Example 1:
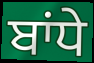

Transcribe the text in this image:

ਬਾਂਧੇ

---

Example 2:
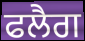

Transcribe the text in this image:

ਫਲੈਗ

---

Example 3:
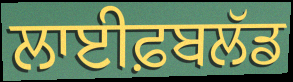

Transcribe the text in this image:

ਲਾਈਫ਼ਬਲੱਡ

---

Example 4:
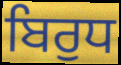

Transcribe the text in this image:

ਬਿਰੁਧ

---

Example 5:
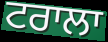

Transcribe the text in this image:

ਟਰਾਲਾ